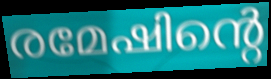
രമേഷിന്റെ